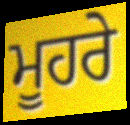
ਮੂਹਰੇ